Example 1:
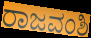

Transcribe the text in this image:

ರಾಜವಂಶಿ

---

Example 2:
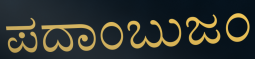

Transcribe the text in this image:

ಪದಾಂಬುಜಂ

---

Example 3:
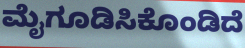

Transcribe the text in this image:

ಮೈಗೂಡಿಸಿಕೊಂಡಿದೆ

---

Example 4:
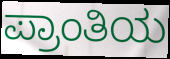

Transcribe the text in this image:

ಪ್ರಾಂತಿಯ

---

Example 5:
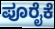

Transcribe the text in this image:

ಪೂರೈಕೆ